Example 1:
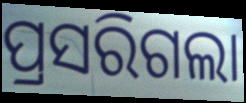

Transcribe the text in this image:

ପ୍ରସରିଗଲା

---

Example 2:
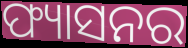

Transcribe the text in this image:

ଫ୍ୟାସନର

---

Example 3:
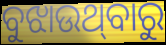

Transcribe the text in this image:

ବୁଝାଉଥ୍‌ବାରୁ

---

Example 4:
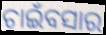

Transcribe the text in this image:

ଚାଇଁବସାର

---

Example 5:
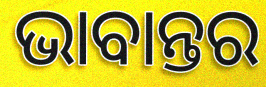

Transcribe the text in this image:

ଭାବାନ୍ତର